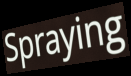
Spraying